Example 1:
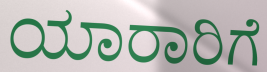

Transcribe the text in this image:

ಯಾರಾರಿಗೆ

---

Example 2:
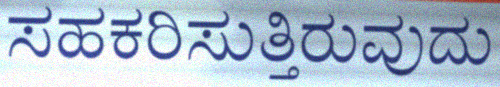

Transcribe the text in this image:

ಸಹಕರಿಸುತ್ತಿರುವುದು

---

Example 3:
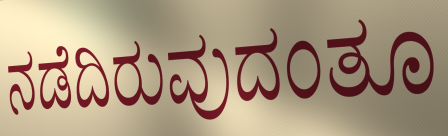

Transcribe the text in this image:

ನಡೆದಿರುವುದಂತೂ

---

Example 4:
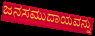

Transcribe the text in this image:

ಜನಸಮುದಾಯವನ್ನು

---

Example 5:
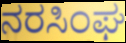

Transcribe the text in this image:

ನರಸಿಂಘ